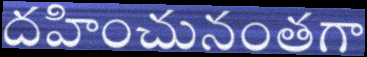
దహించునంతగా